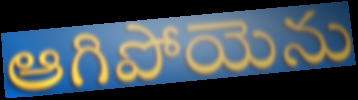
ఆగిపోయెను